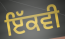
ਇੱਕਵੀ